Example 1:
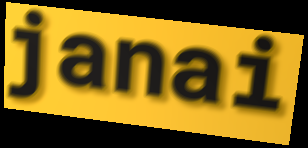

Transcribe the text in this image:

janai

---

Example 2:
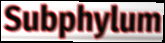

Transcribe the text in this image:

Subphylum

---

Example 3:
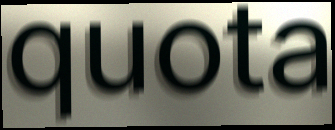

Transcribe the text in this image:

quota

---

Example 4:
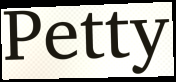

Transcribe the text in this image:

Petty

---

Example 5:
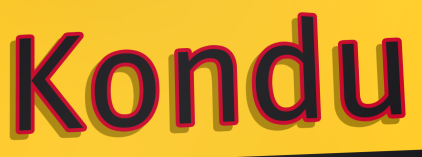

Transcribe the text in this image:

Kondu